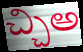
చ్చిఅ